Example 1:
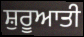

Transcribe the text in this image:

ਸ਼ੁਰੂਆਤੀ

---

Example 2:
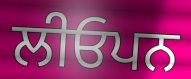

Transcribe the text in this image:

ਲੀਓਪਨ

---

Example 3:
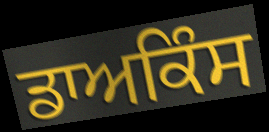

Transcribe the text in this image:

ਡਾਅਕਿੰਸ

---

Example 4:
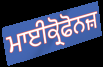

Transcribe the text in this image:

ਮਾਈਕ੍ਰੋਫੋਨਜ਼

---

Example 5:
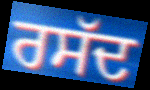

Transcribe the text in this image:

ਰਸੱਦ